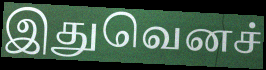
இதுவெனச்